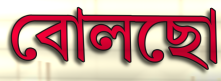
বোলছো